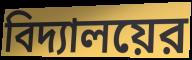
বিদ্যালয়ের